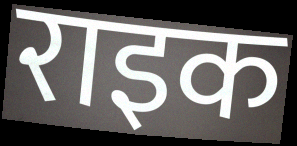
राइक